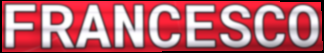
FRANCESCO